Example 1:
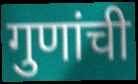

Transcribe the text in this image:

गुणांची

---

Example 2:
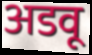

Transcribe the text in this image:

अडवू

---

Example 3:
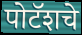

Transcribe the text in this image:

पोटॅशचे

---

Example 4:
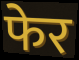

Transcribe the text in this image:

फेर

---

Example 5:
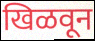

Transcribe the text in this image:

खिळवून